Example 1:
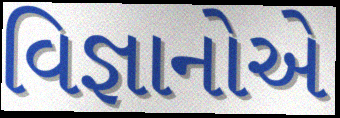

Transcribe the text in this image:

વિજ્ઞાનોએ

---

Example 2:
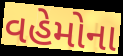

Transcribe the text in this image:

વહેમોના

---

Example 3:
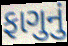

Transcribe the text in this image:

ફાગુનું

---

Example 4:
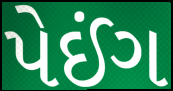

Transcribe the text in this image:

પેઈંગ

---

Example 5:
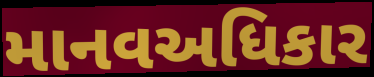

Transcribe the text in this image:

માનવઅધિકાર